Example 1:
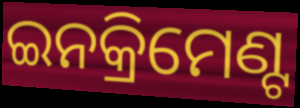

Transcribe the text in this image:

ଇନକ୍ରିମେଣ୍ଟ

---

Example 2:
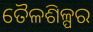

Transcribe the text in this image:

ତୈଳଶିଳ୍ପର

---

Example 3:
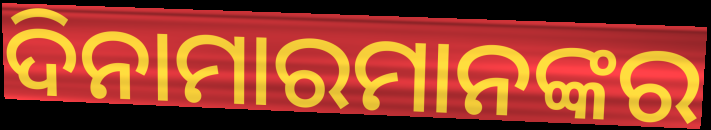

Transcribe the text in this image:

ଦିନାମାରମାନଙ୍କର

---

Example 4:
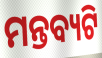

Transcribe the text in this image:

ମନ୍ତବ୍ୟଟି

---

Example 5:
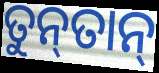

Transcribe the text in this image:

ତୁନ୍‍ତାନ୍